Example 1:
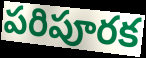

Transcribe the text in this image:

పరిపూరక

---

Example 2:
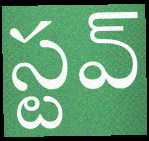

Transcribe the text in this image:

స్టవ్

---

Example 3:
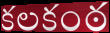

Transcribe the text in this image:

కలకంఠ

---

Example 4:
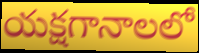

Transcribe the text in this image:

యక్షగానాలలో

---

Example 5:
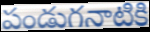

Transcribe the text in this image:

పండుగనాటికి